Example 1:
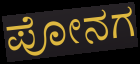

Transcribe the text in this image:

ಪೋನಗ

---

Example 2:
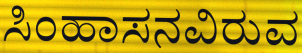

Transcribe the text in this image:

ಸಿಂಹಾಸನವಿರುವ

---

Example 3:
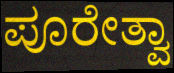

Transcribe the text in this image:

ಪೂರೇತ್ವಾ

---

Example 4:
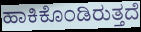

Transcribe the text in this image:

ಹಾಕಿಕೊಂಡಿರುತ್ತದೆ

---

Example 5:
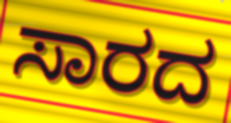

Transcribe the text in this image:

ಸಾರದ